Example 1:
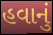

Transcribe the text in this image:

હવાનું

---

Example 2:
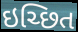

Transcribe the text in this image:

ઇચ્છિત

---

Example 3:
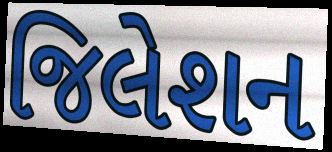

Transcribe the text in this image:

જિલેશન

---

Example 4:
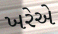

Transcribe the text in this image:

ખરેએ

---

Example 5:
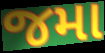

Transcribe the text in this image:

જમા